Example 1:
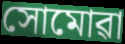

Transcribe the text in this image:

সোমোৱা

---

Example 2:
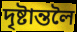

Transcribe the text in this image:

দৃষ্টান্তলৈ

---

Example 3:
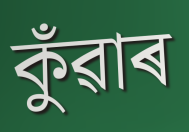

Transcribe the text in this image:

কুঁৱাৰ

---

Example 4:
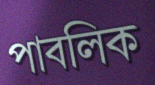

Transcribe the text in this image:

পাবলিক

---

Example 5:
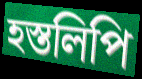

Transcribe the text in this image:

হস্তলিপি